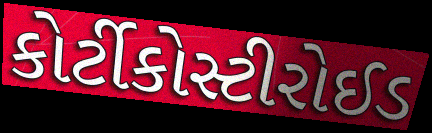
કોર્ટીકોસ્ટીરોઈડ